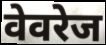
वेवरेज